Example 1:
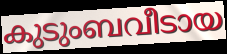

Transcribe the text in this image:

കുടുംബവീടായ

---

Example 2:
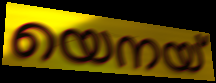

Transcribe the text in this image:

യെനയ്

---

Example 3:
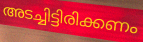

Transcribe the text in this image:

അടച്ചിട്ടിരിക്കണം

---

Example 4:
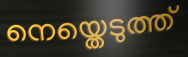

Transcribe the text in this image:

നെയ്തെടുത്ത്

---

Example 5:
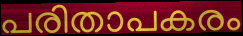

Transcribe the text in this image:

പരിതാപകരം